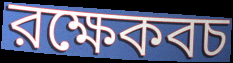
রক্ষেকবচ